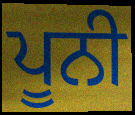
ਪੂਨੀ